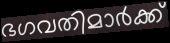
ഭഗവതിമാർക്ക്